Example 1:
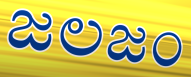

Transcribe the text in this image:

జలజం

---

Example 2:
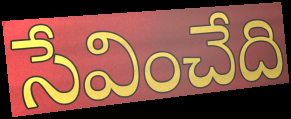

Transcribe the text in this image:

సేవించేది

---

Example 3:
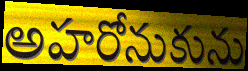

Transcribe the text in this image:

అహరోనుకును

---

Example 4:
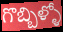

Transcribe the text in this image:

గొబ్బిళ్ళో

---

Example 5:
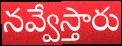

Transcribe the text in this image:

నవ్వేస్తారు